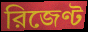
রিজেণ্ট